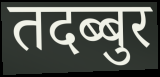
तदब्बुर